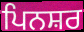
ਪਿਨਸ਼ਰ